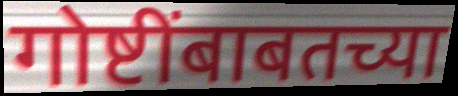
गोष्टींबाबतच्या